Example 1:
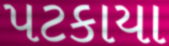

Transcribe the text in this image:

પટકાયા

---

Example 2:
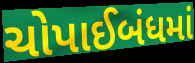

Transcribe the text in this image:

ચોપાઈબંધમાં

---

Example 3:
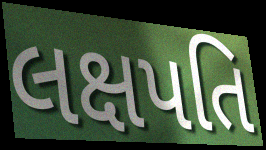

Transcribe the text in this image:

લક્ષપતિ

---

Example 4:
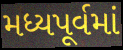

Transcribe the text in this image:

મધ્યપૂર્વમાં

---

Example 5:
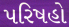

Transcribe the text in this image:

પરિષહો